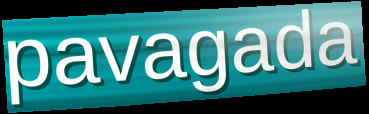
pavagada